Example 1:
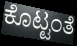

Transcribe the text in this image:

ಕೊಟ್ಟಂತೆ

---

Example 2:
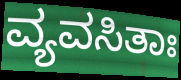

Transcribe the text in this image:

ವ್ಯವಸಿತಾಃ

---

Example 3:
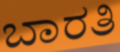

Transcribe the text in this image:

ಬಾರತಿ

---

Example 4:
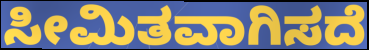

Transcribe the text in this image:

ಸೀಮಿತವಾಗಿಸದೆ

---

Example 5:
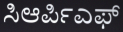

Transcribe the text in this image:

ಸಿಆರ್ಪಿಎಫ್